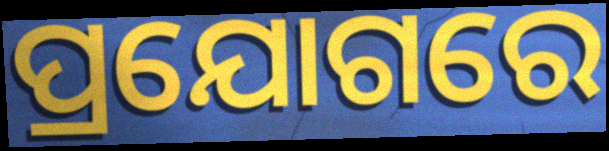
ପ୍ରଯୋଗରେ